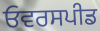
ਓਵਰਸਪੀਡ